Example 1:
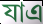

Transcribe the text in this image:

যাএ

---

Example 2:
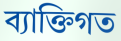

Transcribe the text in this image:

ব্যাক্তিগত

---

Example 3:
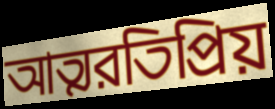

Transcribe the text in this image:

আত্মরতিপ্রিয়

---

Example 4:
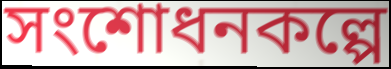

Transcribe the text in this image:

সংশোধনকল্পে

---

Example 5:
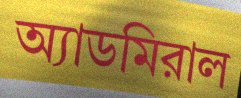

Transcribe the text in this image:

অ্যাডমিরাল